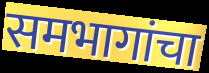
समभागांचा